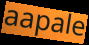
aapale